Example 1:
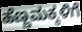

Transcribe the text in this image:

ಹೆಣ್ಣಮಕ್ಕಳಿಗೆ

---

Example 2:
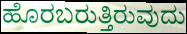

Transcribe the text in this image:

ಹೊರಬರುತ್ತಿರುವುದು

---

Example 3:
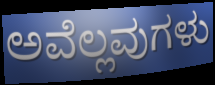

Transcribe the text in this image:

ಅವೆಲ್ಲವುಗಳು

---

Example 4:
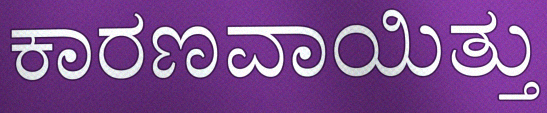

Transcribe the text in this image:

ಕಾರಣವಾಯಿತ್ತು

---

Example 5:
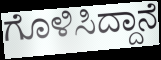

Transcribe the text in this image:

ಗೊಳಿಸಿದ್ದಾನೆ